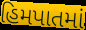
હિમપાતમાં